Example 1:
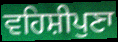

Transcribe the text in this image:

ਵਹਿਸ਼ੀਪੁਣਾ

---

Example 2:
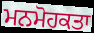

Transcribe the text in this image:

ਮਨਮੋਹਕਤਾ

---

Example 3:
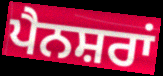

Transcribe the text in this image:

ਪੈਨਸ਼ਰਾਂ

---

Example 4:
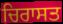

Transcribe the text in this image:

ਚਿਰਾਸਤ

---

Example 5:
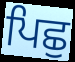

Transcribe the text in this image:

ਪਿਛੁ